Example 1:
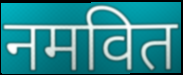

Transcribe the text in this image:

नमवित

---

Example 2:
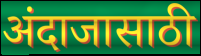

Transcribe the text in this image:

अंदाजासाठी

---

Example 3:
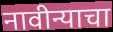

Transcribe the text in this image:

नावीन्याचा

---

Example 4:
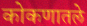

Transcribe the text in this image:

कोकणातले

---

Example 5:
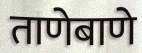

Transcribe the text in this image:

ताणेबाणे